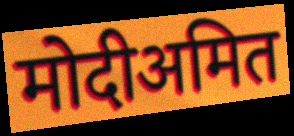
मोदीअमित